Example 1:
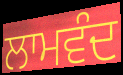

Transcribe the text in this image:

ਲਾਮਵੰਦ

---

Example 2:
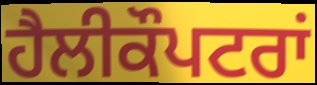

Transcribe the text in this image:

ਹੈਲੀਕੌਪਟਰਾਂ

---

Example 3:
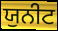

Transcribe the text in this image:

ਯੁਨੀਟ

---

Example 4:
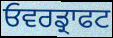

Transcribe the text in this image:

ਓਵਰਡ੍ਰਾਫਟ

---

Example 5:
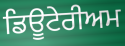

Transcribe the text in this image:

ਡਿਊਟੇਰੀਅਮ